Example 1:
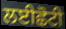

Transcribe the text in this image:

ਲਈਛੋਟੀ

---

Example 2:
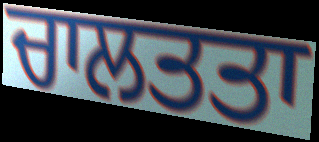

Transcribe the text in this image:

ਚਾਲਤਤਾ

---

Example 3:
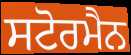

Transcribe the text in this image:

ਸਟੋਰਮੈਨ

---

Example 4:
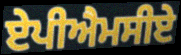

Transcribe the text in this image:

ਏਪੀਐਮਸੀਏ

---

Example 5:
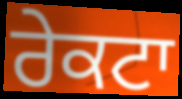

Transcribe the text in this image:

ਰੇਕਟਾ